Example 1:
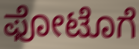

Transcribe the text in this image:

ಫೋಟೊಗೆ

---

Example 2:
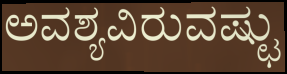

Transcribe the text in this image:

ಅವಶ್ಯವಿರುವಷ್ಟು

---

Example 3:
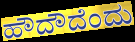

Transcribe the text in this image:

ಹೌದೌದೆಂದು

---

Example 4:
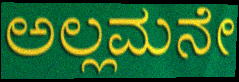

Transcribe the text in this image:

ಅಲ್ಲಮನೇ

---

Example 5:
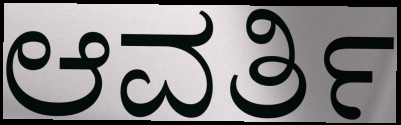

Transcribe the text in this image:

ಆವರ್ತಿ